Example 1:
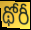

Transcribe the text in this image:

థోరీ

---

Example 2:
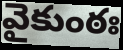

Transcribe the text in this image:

వైకుంఠః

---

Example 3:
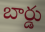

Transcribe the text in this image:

బార్డు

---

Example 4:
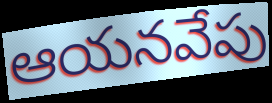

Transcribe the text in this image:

ఆయనవేపు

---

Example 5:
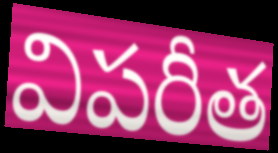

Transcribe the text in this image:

విపరీత